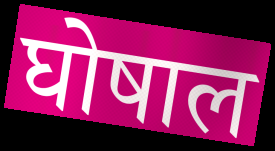
घोषाल